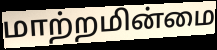
மாற்றமின்மை